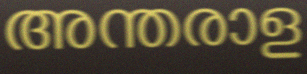
അന്തരാള